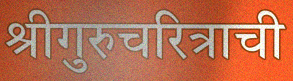
श्रीगुरुचरित्राची